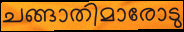
ചങ്ങാതിമാരോടു